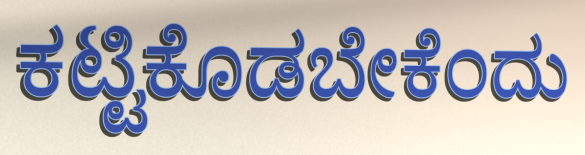
ಕಟ್ಟಿಕೊಡಬೇಕೆಂದು